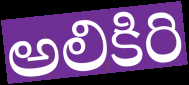
అలికిరి